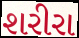
શરીરા